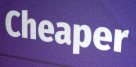
Cheaper